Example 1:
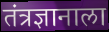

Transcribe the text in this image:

तंत्रज्ञानाला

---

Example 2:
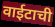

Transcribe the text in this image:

वाईटाची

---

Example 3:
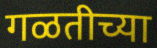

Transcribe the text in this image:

गळतीच्या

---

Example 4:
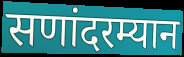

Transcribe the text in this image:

सणांदरम्यान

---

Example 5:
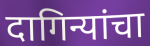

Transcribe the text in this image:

दागिन्यांचा